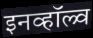
इनव्हॉल्व